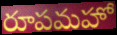
రూపమహో